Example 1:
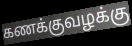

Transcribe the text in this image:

கணக்குவழக்கு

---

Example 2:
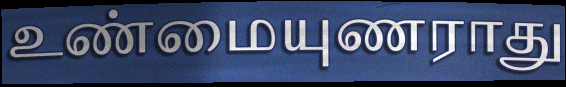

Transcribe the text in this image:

உண்மையுணராது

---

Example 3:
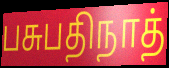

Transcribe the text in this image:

பசுபதிநாத்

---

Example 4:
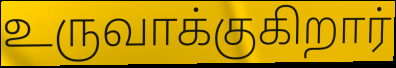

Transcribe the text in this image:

உருவாக்குகிறார்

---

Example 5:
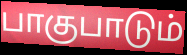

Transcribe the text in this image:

பாகுபாடும்